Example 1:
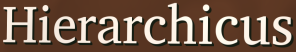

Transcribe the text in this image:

Hierarchicus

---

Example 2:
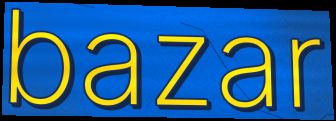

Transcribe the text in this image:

bazar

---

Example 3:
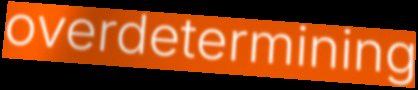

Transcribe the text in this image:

overdetermining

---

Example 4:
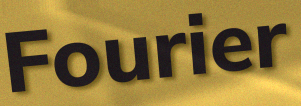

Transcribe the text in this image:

Fourier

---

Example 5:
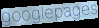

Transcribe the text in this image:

googlepages